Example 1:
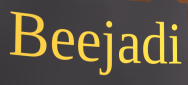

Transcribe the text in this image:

Beejadi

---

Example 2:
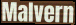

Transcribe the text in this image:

Malvern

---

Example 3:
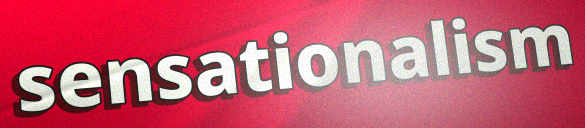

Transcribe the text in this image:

sensationalism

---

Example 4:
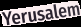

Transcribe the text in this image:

Yerusalem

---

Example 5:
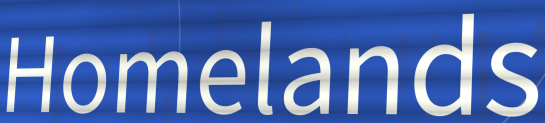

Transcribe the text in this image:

Homelands